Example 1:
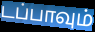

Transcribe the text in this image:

டப்பாவும்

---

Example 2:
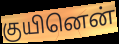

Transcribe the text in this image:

குயினென்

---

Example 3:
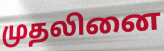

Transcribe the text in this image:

முதலினை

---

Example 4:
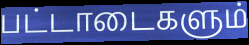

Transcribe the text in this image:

பட்டாடைகளும்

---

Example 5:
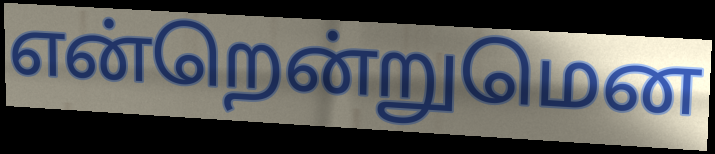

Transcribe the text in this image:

என்றென்றுமென